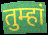
तुम्हां